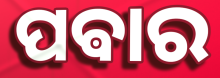
ପଵାର